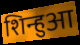
शिन्‍हुआ